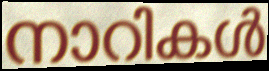
നാറികൾ